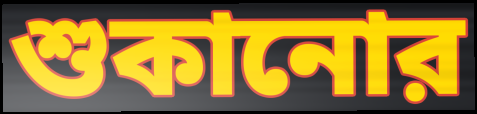
শুকানোর